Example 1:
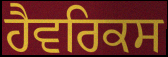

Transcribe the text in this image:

ਹੈਵਰਿਕਸ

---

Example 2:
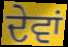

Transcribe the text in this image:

ਦੇਵਾਂ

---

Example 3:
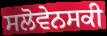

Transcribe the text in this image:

ਸਲੋਵੇਨਸਕੀ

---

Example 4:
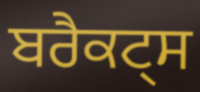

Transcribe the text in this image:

ਬਰੈਕਟ੍ਸ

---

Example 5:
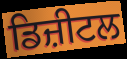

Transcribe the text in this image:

ਡਿਜ਼ੀਟਲ